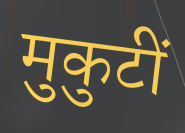
मुकुटीं